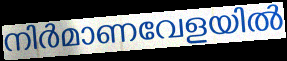
നിർമാണവേളയിൽ